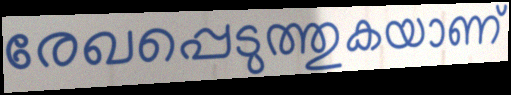
രേഖപ്പെടുത്തുകയാണ്